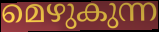
മെഴുകുന്ന